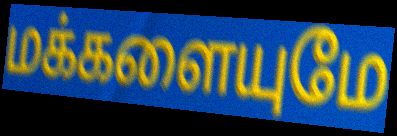
மக்களையுமே